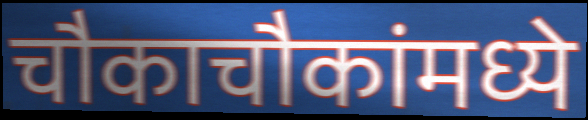
चौकाचौकांमध्ये